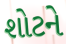
શોટને